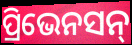
ପ୍ରିଭେନସନ୍